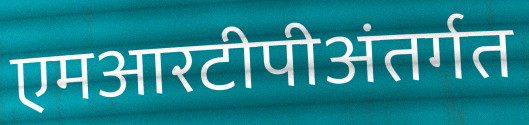
एमआरटीपीअंतर्गत